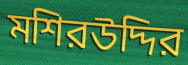
মশিরউদ্দির